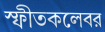
স্ফীতকলেবর